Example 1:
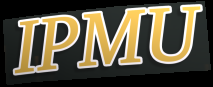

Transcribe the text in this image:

IPMU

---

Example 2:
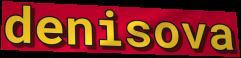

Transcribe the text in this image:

denisova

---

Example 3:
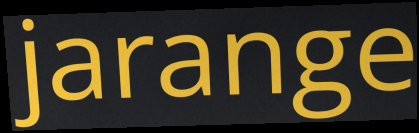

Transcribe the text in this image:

jarange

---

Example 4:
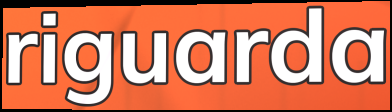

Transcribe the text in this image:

riguarda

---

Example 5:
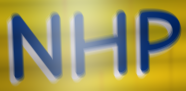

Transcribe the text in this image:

NHP